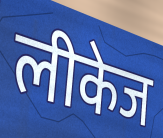
लीकेज